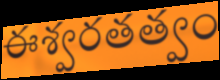
ఈశ్వరతత్వం